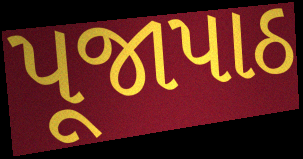
પૂજાપાઠ